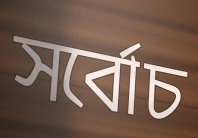
সৰ্বোচ